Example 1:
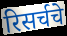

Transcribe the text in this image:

रिसर्चचे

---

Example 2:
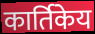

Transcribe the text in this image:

कार्तिकेय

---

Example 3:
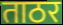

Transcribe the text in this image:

ताठर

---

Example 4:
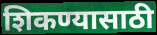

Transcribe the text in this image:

शिकण्यासाठी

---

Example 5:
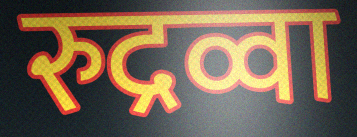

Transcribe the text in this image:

रुद्रव्वा